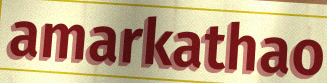
amarkathao